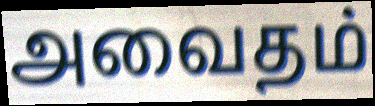
அவைதம்